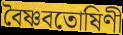
বৈষ্ণবতোষিণী